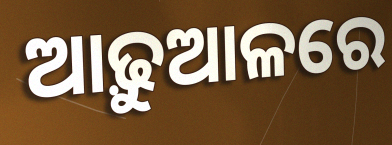
ଆଢ଼ୁଆଳରେ